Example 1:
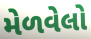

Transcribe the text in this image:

મેળવેલો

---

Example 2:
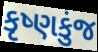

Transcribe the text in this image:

કૃષ્ણકુંજ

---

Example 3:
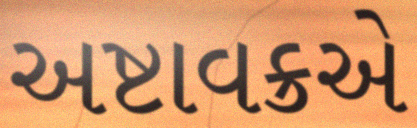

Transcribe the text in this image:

અષ્ટાવક્રએ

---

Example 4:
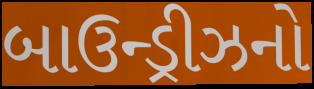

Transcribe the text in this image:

બાઉન્ડ્રીઝનો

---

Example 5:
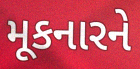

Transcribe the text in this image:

મૂકનારને